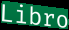
Libro